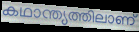
കഥാന്ത്യത്തിലാണ്